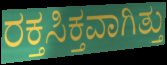
ರಕ್ತಸಿಕ್ತವಾಗಿತ್ತು